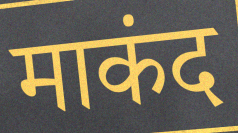
माकंद